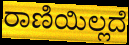
ರಾಣಿಯಿಲ್ಲದೆ